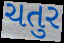
ચતુર